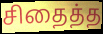
சிதைத்த